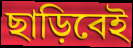
ছাড়িবেই